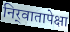
निर्वातापेक्षा